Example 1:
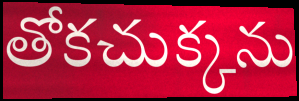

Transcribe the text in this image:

తోకచుక్కను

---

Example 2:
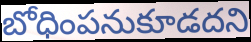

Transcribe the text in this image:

బోధింపనుకూడదని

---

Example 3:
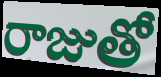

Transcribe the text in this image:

రాజుతో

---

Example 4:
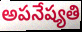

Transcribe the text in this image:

అపనేష్యతి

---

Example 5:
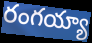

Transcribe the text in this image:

రంగయ్యా